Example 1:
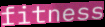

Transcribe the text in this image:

fitness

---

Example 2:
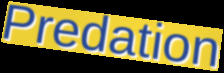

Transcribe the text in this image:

Predation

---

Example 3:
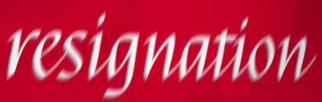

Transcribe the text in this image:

resignation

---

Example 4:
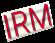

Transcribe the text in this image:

IRM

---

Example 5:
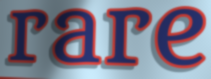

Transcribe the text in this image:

rare